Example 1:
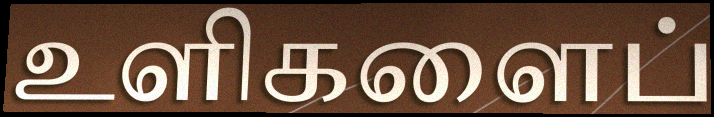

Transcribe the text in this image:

உளிகளைப்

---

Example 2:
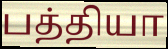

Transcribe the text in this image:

பத்தியா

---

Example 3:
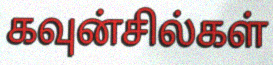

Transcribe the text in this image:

கவுன்சில்கள்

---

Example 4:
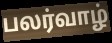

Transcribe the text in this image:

பலர்வாழ்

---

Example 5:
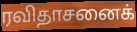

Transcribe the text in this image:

ரவிதாசனைக்